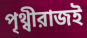
পৃথ্বীরাজই